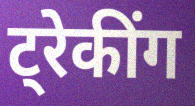
ट्रेकींग